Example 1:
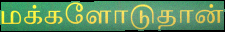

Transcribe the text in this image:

மக்களோடுதான்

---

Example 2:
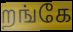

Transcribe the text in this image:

றங்கே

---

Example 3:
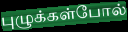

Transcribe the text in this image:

புழுக்கள்போல்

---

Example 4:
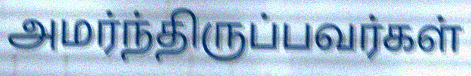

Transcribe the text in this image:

அமர்ந்திருப்பவர்கள்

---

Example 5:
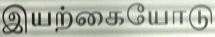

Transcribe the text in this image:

இயற்கையோடு